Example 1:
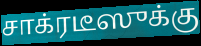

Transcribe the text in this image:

சாக்ரடீஸுக்கு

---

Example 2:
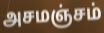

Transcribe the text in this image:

அசமஞ்சம்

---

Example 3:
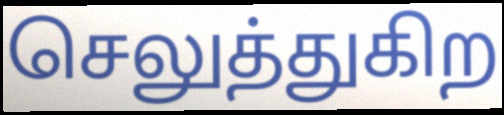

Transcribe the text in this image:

செலுத்துகிற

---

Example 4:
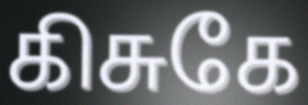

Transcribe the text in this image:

கிசுகே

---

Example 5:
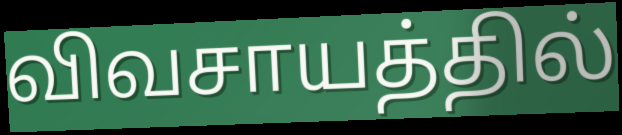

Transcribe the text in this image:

விவசாயத்தில்